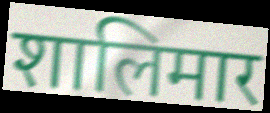
शालिमार